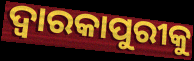
ଦ୍ୱାରକାପୁରୀକୁ